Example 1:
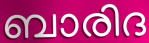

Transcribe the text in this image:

ബാരിദ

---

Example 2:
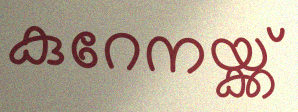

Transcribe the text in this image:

കുറേനയ്ക്ക്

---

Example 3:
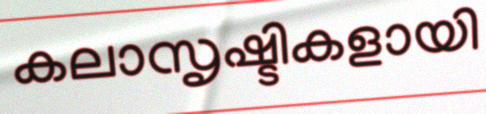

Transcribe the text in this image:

കലാസൃഷ്ടികളായി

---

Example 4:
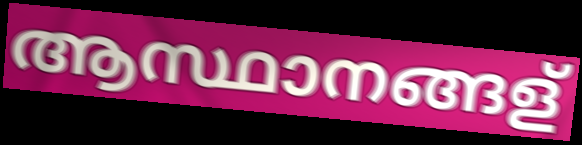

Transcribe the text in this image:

ആസ്ഥാനങ്ങള്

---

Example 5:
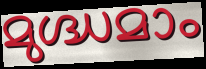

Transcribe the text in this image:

മുഗ്ദ്ധമാം